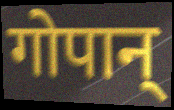
गोपान्